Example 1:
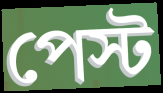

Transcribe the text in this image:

পেস্ট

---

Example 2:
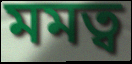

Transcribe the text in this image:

মমত্ব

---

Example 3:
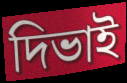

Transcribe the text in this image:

দিভাই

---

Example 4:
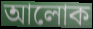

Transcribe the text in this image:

আলোক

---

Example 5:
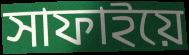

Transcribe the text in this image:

সাফাইয়ে